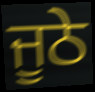
ਜੂਠੇ